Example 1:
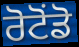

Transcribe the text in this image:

ਰੋਟੋਂਡੋ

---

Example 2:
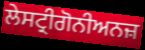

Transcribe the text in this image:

ਲੇਸਟ੍ਰੀਗੋਨੀਅਨਜ਼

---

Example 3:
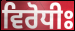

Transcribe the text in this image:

ਵਿਰੋਧੀਃ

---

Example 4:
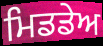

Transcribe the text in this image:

ਮਿਡਡੇਅ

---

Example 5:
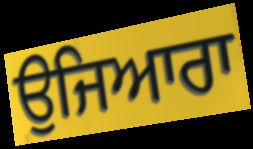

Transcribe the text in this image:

ਉਜਿਆਰਾ